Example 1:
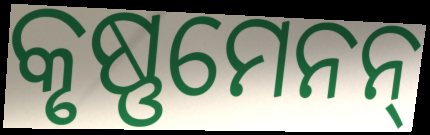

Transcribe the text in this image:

କୃଷ୍ଣମେନନ୍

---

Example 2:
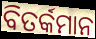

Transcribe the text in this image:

ବିତର୍କମାନ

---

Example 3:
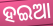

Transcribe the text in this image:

ହଇଆ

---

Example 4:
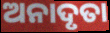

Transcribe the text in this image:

ଅନାଦୃତା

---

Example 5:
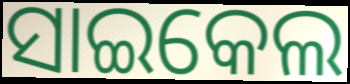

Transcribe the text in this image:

ସାଇକେଲ